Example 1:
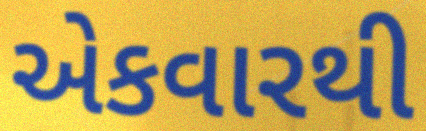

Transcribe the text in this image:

એકવારથી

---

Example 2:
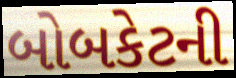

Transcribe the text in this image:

બોબકેટની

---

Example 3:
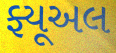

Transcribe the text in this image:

ફ્યૂઅલ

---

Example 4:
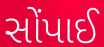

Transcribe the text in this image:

સોંપાઈ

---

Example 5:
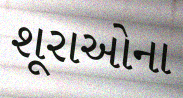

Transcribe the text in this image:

શૂરાઓના